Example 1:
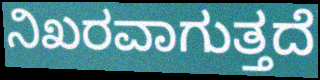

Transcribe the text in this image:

ನಿಖರವಾಗುತ್ತದೆ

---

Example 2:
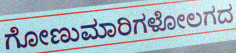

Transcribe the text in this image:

ಗೋಣುಮಾರಿಗಳೋಲಗದ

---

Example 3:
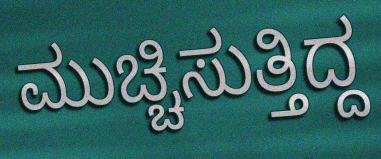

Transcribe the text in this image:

ಮುಚ್ಚಿಸುತ್ತಿದ್ದ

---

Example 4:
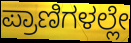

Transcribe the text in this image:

ಪ್ರಾಣಿಗಳಲ್ಲೇ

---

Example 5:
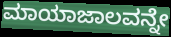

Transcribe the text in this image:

ಮಾಯಾಜಾಲವನ್ನೇ